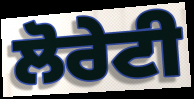
ਲੋਰੇਟੀ